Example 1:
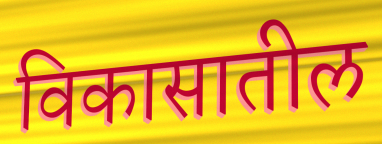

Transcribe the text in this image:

विकासातील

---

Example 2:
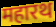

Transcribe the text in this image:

महारथ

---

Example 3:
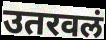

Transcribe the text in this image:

उतरवलं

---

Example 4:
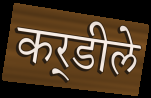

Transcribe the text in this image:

कर्डीले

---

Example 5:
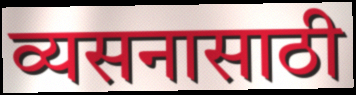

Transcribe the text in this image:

व्यसनासाठी